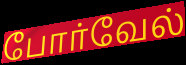
போர்வேல்